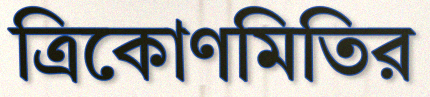
ত্রিকোণমিতির